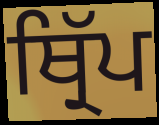
ਥ੍ਰਿੱਪ